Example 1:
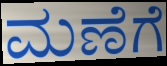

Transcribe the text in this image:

ಮಣೆಗೆ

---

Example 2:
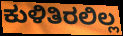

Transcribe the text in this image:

ಕುಳಿತಿರಲಿಲ್ಲ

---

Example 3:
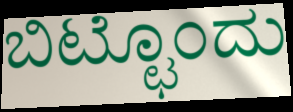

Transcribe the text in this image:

ಬಿಟ್ಟೊಂದು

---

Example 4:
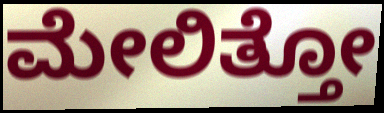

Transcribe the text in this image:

ಮೇಲಿತ್ತೋ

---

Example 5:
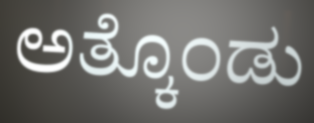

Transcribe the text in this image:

ಅತ್ಕೊಂಡು